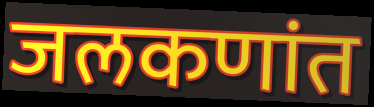
जलकणांत